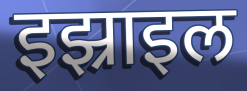
इझ्राइल